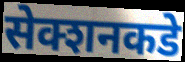
सेक्शनकडे